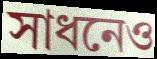
সাধনেও